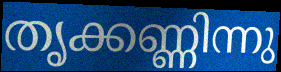
തൃക്കണ്ണിന്നു